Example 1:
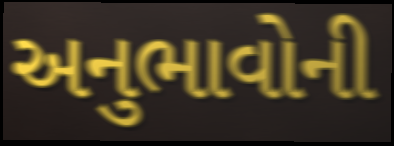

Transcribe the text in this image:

અનુભાવોની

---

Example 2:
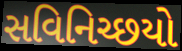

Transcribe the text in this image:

સવિનિચ્છયો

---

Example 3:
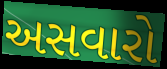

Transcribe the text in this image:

અસવારો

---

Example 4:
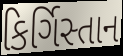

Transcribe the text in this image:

કિર્ગિસ્તાન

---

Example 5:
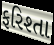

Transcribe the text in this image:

ફરિશ્તા